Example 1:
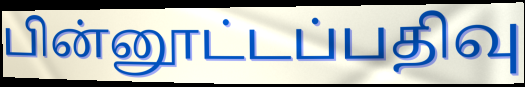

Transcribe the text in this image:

பின்னூட்டப்பதிவு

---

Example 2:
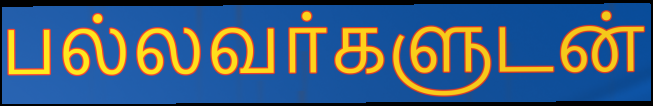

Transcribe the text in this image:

பல்லவர்களுடன்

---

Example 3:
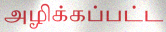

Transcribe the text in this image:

அழிக்கப்பட்ட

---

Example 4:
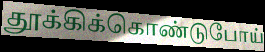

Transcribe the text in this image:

தூக்கிக்கொண்டுபோய்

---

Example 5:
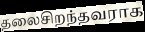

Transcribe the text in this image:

தலைசிறந்தவராக